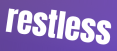
restless